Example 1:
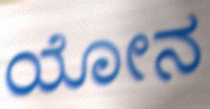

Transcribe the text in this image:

ಯೋನ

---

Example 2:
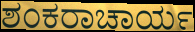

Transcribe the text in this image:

ಶಂಕರಾಚಾರ್ಯ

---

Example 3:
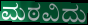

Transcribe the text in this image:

ಮಠವಿದು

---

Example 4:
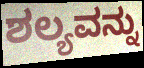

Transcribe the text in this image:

ಶಲ್ಯವನ್ನು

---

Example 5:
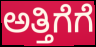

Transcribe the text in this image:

ಅತ್ತಿಗೆಗೆ